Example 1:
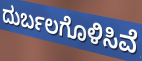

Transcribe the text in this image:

ದುರ್ಬಲಗೊಳಿಸಿವೆ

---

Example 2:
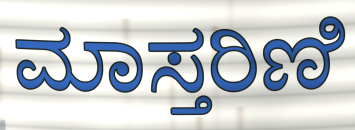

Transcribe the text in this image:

ಮಾಸ್ತರಿಣಿ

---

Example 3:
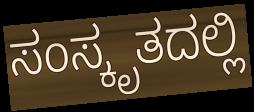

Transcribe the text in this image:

ಸಂಸ್ಕೃತದಲ್ಲಿ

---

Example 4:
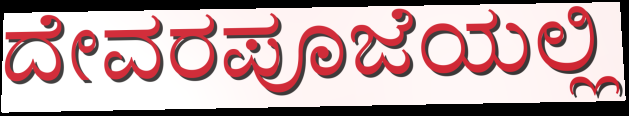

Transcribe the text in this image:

ದೇವರಪೂಜೆಯಲ್ಲಿ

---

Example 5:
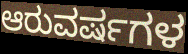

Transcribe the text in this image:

ಆರುವರ್ಷಗಳ